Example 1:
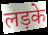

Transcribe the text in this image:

लड़के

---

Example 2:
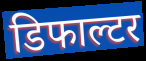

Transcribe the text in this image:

डिफाल्टर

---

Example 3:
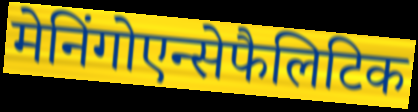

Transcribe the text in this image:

मेनिंगोएन्सेफैलिटिक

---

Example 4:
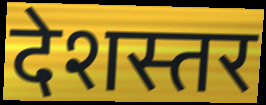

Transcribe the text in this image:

देशस्तर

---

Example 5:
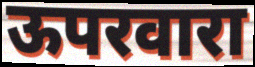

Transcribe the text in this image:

ऊपरवारा